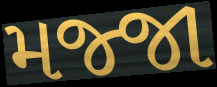
મજ્જા